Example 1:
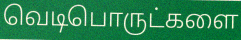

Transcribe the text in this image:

வெடிபொருட்களை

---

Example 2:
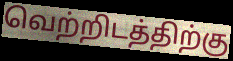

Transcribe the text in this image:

வெற்றிடத்திற்கு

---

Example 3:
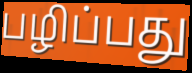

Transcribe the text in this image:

பழிப்பது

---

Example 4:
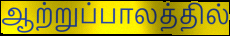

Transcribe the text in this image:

ஆற்றுப்பாலத்தில்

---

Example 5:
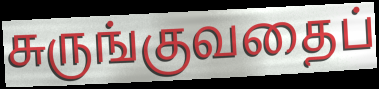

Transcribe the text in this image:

சுருங்குவதைப்